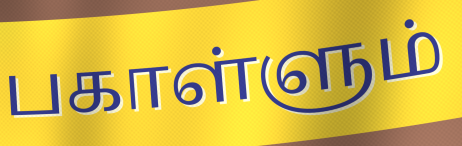
பகாள்ளும்